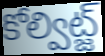
కోల్విట్జ్